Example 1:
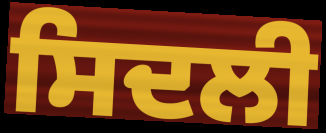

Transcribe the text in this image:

ਸਿਦਲੀ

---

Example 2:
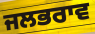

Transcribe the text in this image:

ਜਲਭਰਾਵ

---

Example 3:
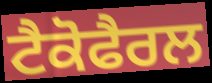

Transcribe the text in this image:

ਟੈਕੋਫੈਰਲ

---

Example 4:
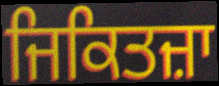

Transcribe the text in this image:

ਜਿਕਿਤਜ਼ਾ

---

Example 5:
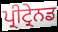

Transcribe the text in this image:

ਪ੍ਰੀਟ੍ਰੇਨਡ